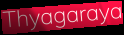
Thyagaraya